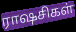
ராஷசிகள்